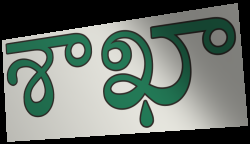
శాఖా